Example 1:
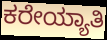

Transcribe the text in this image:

ಕರೇಯ್ಯಾತಿ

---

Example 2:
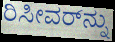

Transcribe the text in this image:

ರಿಸೀವರ್‌ನ್ನು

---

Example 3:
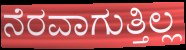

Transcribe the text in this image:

ನೆರವಾಗುತ್ತಿಲ್ಲ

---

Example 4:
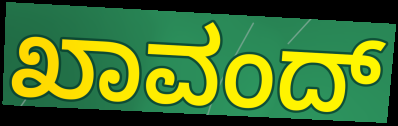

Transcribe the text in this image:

ಖಾವಂದ್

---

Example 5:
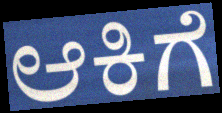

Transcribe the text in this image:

ಆಕಿಗೆ